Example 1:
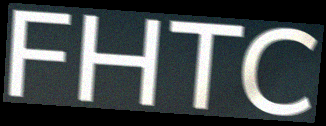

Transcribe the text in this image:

FHTC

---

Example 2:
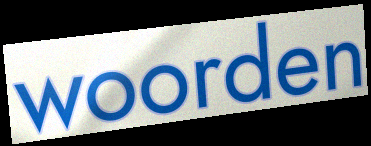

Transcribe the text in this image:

woorden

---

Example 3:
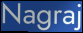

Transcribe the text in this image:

Nagraj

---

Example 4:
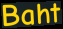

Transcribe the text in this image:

Baht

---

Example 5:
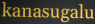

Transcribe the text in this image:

kanasugalu